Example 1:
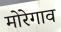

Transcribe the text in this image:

मोरेगाव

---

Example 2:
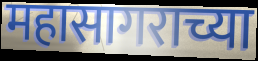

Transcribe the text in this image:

महासागराच्या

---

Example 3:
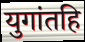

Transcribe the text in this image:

युगांतहि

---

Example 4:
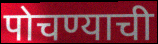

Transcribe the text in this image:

पोचण्याची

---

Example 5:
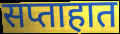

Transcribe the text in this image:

सप्ताहात